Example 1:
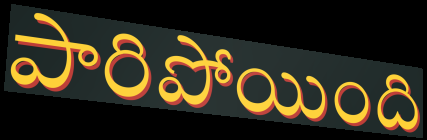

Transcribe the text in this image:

పారిపోయింది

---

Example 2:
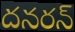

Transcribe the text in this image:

దనరన్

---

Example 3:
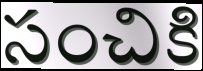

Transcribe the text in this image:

సంచికి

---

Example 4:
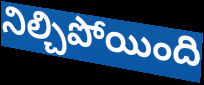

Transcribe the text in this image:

నిల్చిపోయింది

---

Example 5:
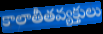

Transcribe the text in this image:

కాలాతీతవ్యక్తులు